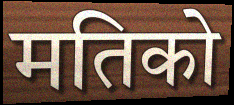
मतिको